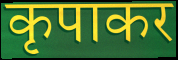
कृपाकर